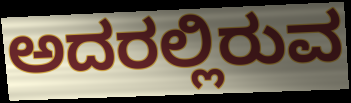
ಅದರಲ್ಲಿರುವ